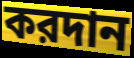
করদান